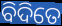
ବିଦିତେ